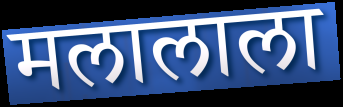
मलालाला